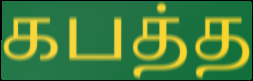
கபத்த